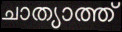
ചാത്യാത്ത്